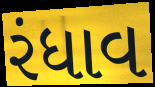
રંધાવ